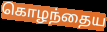
கொழந்தைய